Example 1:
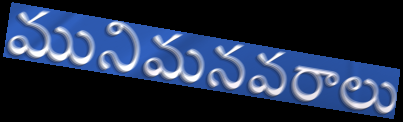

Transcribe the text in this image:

మునిమనవరాలు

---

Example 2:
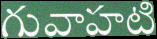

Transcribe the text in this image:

గువాహటి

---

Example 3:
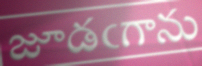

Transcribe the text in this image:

జూడఁగాను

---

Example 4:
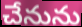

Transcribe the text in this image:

చేనును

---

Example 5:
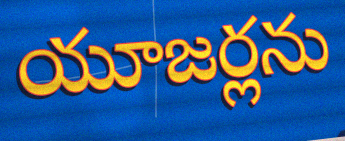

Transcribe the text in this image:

యూజర్లను